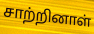
சாற்றினாள்